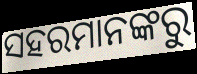
ସହରମାନଙ୍କରୁ